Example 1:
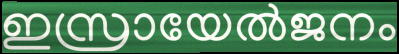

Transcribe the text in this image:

ഇസ്രായേൽജനം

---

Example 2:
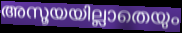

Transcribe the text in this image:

അസൂയയില്ലാതെയും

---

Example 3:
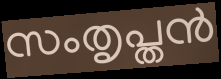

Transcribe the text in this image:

സംതൃപ്തൻ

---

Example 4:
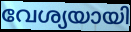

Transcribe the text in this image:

വേശ്യയായി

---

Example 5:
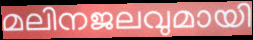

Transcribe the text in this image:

മലിനജലവുമായി